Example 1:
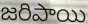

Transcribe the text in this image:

జరిపాయి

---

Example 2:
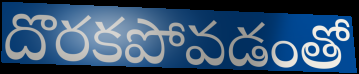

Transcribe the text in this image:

దొరకపోవడంతో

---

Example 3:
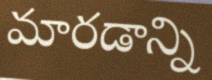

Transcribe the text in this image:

మారడాన్ని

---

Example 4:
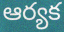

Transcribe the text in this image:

ఆర్యక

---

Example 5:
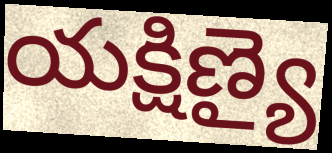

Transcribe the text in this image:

యక్షిణ్యై